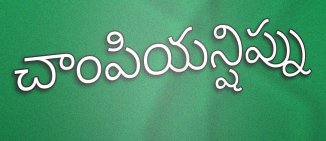
చాంపియన్షిప్ను